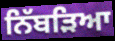
ਨਿੱਬੜਿਆ